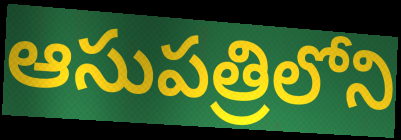
ఆసుపత్రిలోని